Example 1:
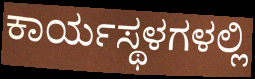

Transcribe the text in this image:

ಕಾರ್ಯಸ್ಥಳಗಳಲ್ಲಿ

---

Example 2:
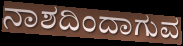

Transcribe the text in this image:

ನಾಶದಿಂದಾಗುವ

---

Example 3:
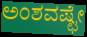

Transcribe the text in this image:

ಅಂಶವಷ್ಟೇ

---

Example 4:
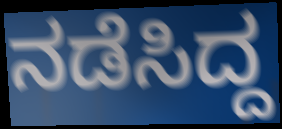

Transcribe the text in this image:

ನಡೆಸಿದ್ದ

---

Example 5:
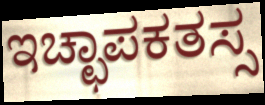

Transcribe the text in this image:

ಇಚ್ಛಾಪಕತಸ್ಸ